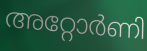
അറ്റോർണി